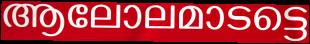
ആലോലമാടട്ടെ